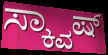
ಸ್ಕ್ವಾಷ್